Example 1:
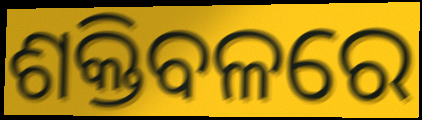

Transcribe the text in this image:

ଶକ୍ତିବଳରେ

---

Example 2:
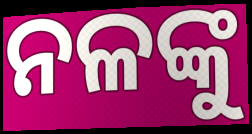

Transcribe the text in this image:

ନଳଙ୍କୁ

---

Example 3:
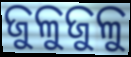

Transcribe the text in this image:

ଜୁଳୁଜୁଳୁ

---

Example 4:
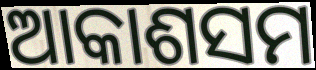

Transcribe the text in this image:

ଆକାଶସମ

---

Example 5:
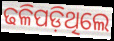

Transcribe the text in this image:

ଢଳିପଡ଼ିଥିଲେ